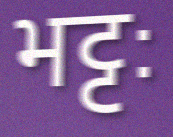
भट्टः